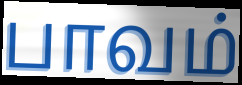
பாவம்